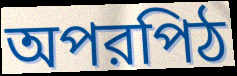
অপরপিঠ